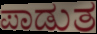
ಪಾಡುತ